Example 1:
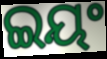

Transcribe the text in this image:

ଇୟଂ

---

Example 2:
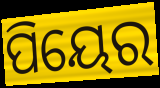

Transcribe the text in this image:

ପିୟେର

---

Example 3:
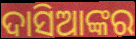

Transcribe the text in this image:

ଦାସିଆଙ୍କର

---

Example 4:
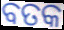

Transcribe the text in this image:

ବତକ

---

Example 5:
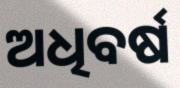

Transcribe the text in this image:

ଅଧିବର୍ଷ